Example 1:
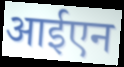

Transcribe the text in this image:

आईएन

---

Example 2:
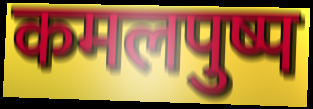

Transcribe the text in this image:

कमलपुष्प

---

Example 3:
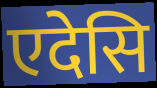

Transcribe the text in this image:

एदेसि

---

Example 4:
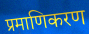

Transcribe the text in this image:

प्रमाणिकरण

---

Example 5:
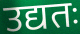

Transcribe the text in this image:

उद्यतः